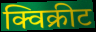
क्विक्रीट